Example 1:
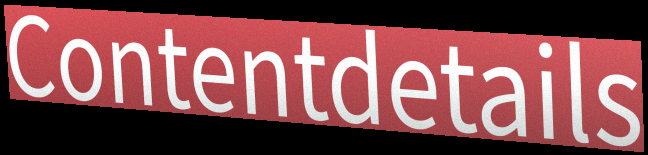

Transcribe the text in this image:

Contentdetails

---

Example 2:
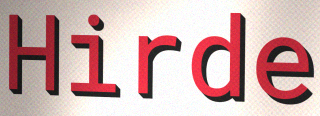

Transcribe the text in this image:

Hirde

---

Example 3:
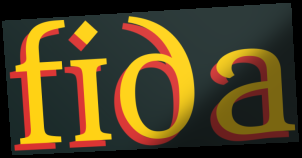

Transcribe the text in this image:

fida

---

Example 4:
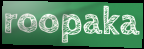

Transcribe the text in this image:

roopaka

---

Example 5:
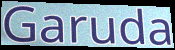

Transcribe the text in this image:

Garuda